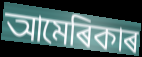
আমেৰিকাৰ